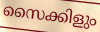
സൈക്കിളും